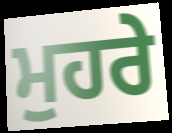
ਮੁਹਰੇ